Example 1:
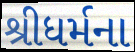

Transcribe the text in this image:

શ્રીધર્મના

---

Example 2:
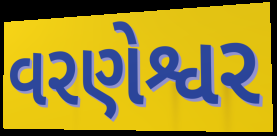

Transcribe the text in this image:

વરણેશ્વર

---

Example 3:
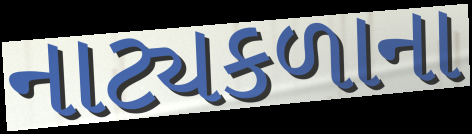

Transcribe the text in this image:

નાટ્યકળાના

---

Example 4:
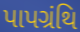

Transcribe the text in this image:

પાપગ્રંથિ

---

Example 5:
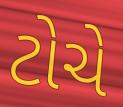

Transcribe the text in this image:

ટોચે